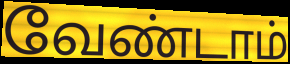
வேண்டாம்